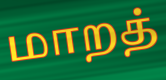
மாறத்